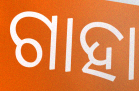
ଗାହା